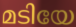
മടിയേ